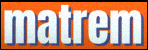
matrem